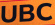
UBC